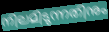
നിലമിടുന്നതിനും